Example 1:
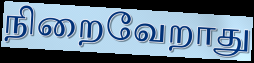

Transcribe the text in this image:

நிறைவேறாது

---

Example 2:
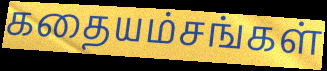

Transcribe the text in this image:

கதையம்சங்கள்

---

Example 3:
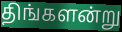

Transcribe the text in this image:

திங்களன்று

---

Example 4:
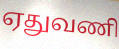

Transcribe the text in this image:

ஏதுவணி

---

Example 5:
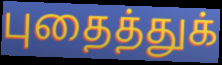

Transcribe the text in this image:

புதைத்துக்